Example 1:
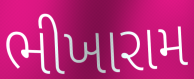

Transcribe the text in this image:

ભીખારામ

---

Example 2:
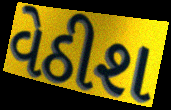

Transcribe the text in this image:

વેઠીશ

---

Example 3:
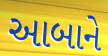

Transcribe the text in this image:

આબાને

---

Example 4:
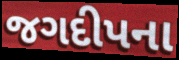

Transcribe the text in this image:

જગદીપના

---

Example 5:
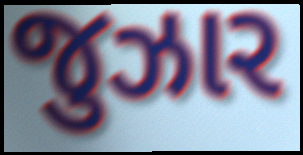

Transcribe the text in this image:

જુઝાર